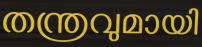
തന്ത്രവുമായി